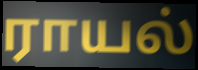
ராயல்